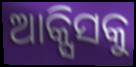
ଆକ୍ସିସକୁ